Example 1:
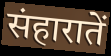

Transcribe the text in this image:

संहारातें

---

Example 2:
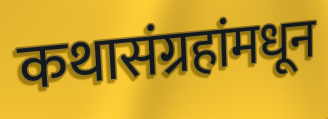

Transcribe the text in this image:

कथासंग्रहांमधून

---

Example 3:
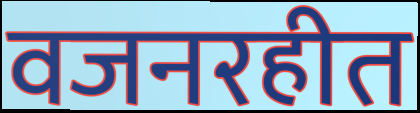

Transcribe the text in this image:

वजनरहीत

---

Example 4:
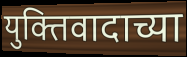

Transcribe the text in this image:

युक्तिवादाच्या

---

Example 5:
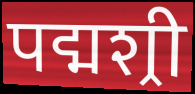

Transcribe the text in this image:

पद्मश्री